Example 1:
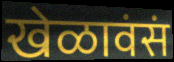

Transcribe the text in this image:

खेळावंसं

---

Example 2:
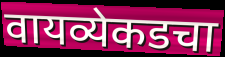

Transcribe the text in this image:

वायव्येकडचा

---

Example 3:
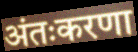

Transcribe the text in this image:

अंतःकरणा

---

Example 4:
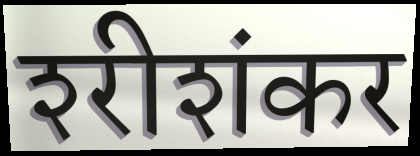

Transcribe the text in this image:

श्रीशंकर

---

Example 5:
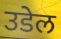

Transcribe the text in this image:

उडेल